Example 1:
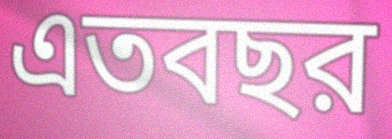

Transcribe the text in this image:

এতবছর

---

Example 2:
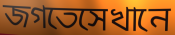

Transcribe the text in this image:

জগতেসেখানে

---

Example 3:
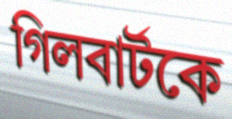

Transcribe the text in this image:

গিলবার্টকে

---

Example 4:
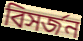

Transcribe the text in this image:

বিসর্জন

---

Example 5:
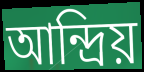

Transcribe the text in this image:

আন্দ্রিয়